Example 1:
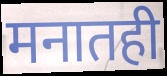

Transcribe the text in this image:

मनातही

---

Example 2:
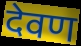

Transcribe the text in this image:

देवण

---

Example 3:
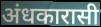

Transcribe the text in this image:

अंधकारासी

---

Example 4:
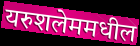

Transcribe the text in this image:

यरुशलेममधील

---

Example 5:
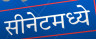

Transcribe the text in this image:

सीनेटमध्ये